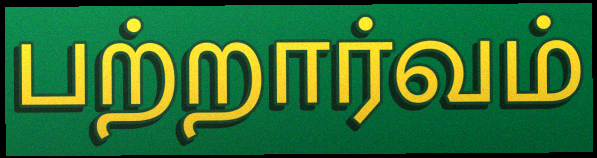
பற்றார்வம்